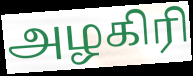
அழகிரி